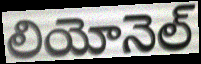
లియోనెల్